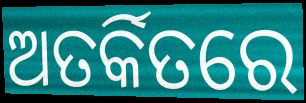
ଅତର୍କିତରେ